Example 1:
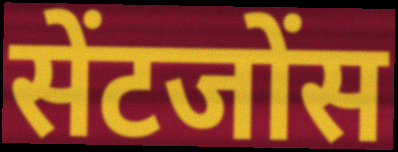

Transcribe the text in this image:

सेंटजोंस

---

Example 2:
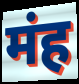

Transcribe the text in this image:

मंह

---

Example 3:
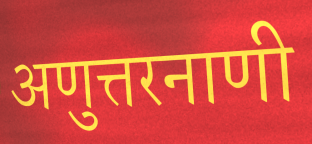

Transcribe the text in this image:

अणुत्तरनाणी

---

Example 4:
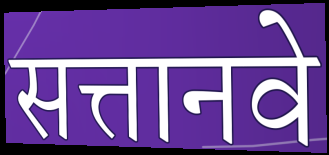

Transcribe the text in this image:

सत्तानवे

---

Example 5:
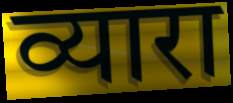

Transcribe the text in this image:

व्यारा